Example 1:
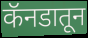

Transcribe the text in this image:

कॅनडातून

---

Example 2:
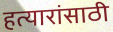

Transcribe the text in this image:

हत्यारांसाठी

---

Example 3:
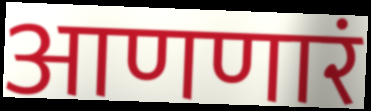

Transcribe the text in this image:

आणणारं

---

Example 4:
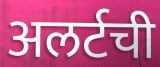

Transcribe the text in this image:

अलर्टची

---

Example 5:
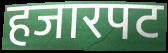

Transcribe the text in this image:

हजारपट